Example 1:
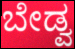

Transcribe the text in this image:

ಬೇಡ್ವ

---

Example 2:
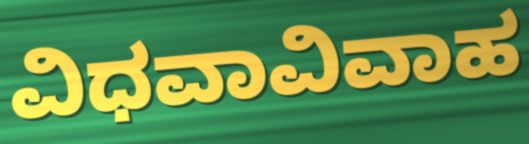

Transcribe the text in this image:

ವಿಧವಾವಿವಾಹ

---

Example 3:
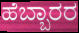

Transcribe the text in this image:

ಹೆಬ್ಬಾರರ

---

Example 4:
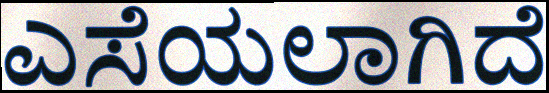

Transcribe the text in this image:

ಎಸೆಯಲಾಗಿದೆ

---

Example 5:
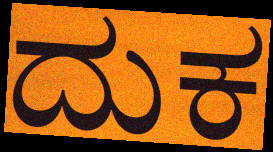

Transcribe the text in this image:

ದುಕ